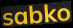
sabko